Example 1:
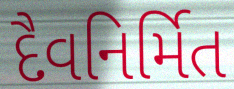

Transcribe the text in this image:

દૈવનિર્મિત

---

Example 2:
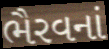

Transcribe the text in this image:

ભૈરવનાં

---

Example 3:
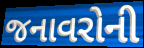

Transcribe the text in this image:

જનાવરોની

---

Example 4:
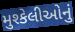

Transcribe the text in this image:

મુશ્કેલીઓનું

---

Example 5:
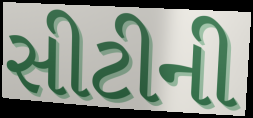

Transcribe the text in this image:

સીટીની